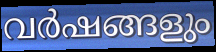
വർഷങ്ങളും